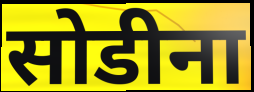
सोडीना